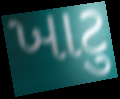
ખાટુ